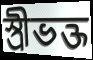
স্ত্রীভক্ত